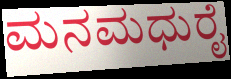
ಮನಮಧುರೈ